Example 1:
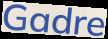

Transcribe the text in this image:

Gadre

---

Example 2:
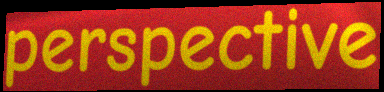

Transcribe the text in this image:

perspective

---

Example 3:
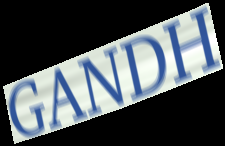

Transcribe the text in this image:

GANDH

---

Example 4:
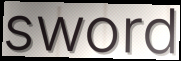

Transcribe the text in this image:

sword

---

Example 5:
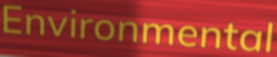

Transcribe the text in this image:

Environmental